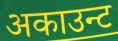
अकाउन्ट